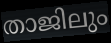
താജിലും